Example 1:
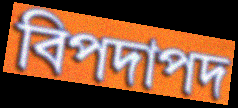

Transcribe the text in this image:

বিপদাপদ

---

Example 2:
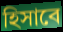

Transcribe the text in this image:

হিসাবে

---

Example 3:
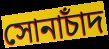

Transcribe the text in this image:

সোনাচাঁদ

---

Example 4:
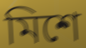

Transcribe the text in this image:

মিশে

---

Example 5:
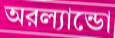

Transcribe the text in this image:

অরল্যান্ডো